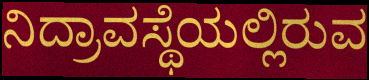
ನಿದ್ರಾವಸ್ಥೆಯಲ್ಲಿರುವ